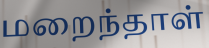
மறைந்தாள்